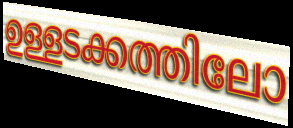
ഉള്ളടക്കത്തിലോ